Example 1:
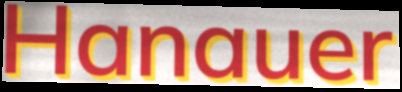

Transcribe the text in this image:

Hanauer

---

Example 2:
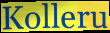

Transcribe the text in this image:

Kolleru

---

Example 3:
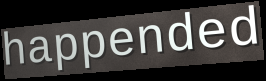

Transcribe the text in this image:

happended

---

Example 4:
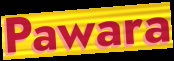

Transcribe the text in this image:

Pawara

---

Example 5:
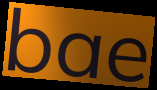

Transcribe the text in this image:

bae